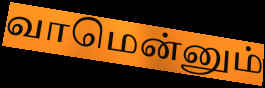
வாமென்னும்